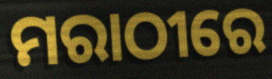
ମରାଠୀରେ